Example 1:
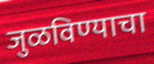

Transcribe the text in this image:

जुळविण्याचा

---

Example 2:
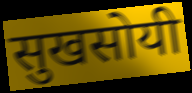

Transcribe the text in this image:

सुखसोयी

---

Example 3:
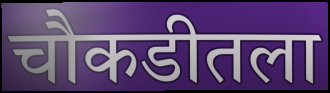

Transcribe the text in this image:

चौकडीतला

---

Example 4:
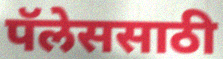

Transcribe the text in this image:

पॅलेससाठी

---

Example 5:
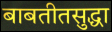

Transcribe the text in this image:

बाबतीतसुद्धा